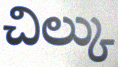
చిల్కు